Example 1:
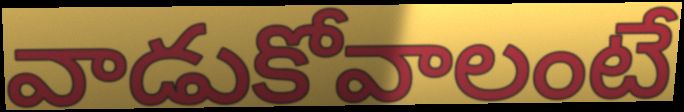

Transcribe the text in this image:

వాడుకోవాలంటే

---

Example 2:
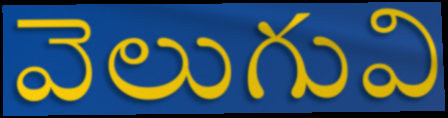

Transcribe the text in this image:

వెలుగువి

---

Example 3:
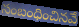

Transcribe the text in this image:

సంబంధించినవే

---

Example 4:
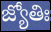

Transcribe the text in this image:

జ్యోతిః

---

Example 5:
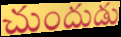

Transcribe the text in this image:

చుందుడు